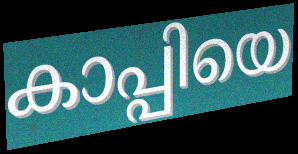
കാപ്പിയെ